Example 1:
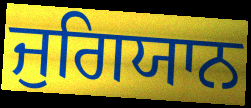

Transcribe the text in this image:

ਜੁਗਿਯਾਨ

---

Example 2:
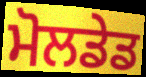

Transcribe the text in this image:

ਮੋਲਡੇਡ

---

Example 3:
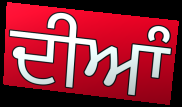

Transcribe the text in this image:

ਦੀਆੰ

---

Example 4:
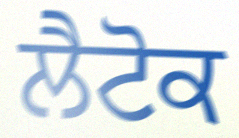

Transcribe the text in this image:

ਲੈਟੋਕ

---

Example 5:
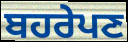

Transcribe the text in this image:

ਬਹਰੇਪਣ